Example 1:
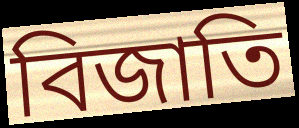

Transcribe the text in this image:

বিজাতি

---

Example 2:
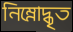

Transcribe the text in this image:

নিম্নোদ্ধৃত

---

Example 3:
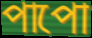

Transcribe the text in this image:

পাপো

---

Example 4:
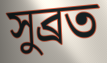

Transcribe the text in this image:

সুব্রত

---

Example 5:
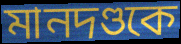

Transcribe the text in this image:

মানদণ্ডকে